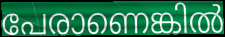
പേരാണെങ്കിൽ